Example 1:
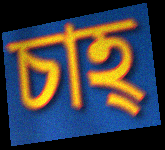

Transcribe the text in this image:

চাহ্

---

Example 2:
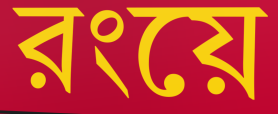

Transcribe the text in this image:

রংয়ে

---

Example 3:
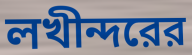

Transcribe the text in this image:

লখীন্দরের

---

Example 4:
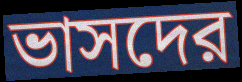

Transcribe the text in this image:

ভাসদের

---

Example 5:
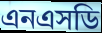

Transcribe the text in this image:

এনএসডি